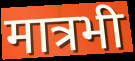
मात्रभी